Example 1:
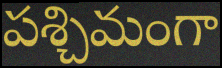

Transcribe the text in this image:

పశ్చిమంగా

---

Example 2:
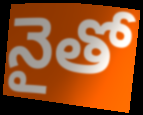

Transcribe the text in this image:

నైతో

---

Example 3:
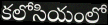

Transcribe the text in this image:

కలోసియంలో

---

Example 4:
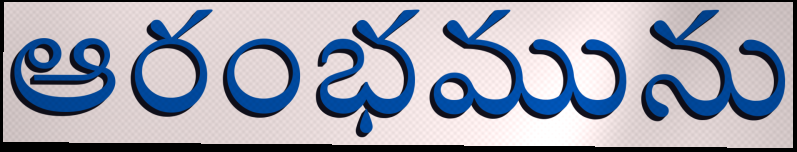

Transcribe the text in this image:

ఆరంభమును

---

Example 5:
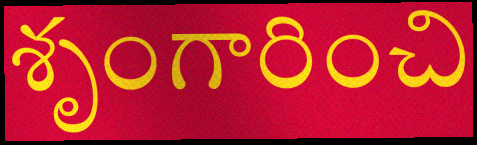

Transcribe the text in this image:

శృంగారించి